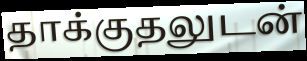
தாக்குதலுடன்